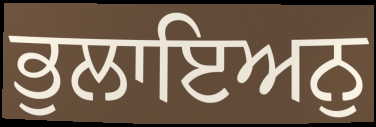
ਭੁਲਾਇਅਨੁ